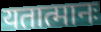
यतात्मानः